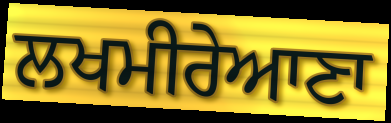
ਲਖਮੀਰੇਆਣਾ